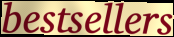
bestsellers